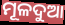
ମୂଳଦୁଆ